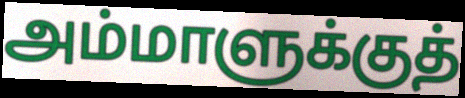
அம்மாளுக்குத்